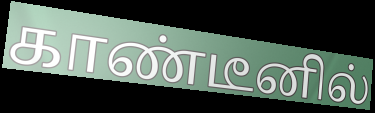
காண்டீனில்